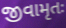
જીવામૃતઃ